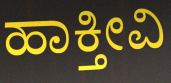
ಹಾಕ್ತೀವಿ